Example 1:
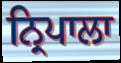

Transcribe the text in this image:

ਨ੍ਰਿਪਾਲਾ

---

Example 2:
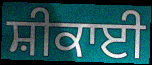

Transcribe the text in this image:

ਸ਼ੀਕਾਈ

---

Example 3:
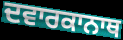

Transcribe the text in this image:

ਦਵਾਰਕਾਨਾਥ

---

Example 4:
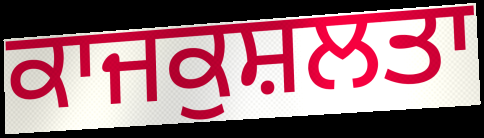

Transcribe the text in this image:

ਕਾਜਕੁਸ਼ਲਤਾ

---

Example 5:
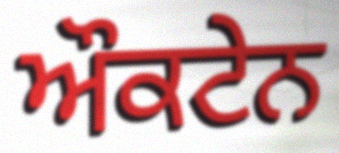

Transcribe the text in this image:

ਔਕਟੇਨ